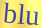
blu